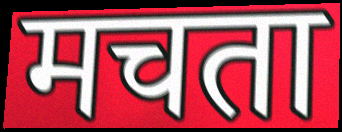
मचता